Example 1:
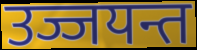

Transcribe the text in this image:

उज्जयन्त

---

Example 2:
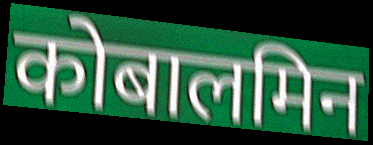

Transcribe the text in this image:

कोबालमिन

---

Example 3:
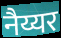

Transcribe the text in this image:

नैय्यर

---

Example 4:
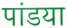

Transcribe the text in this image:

पांडया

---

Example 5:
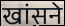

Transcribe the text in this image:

खांसने